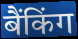
बैंकिंग